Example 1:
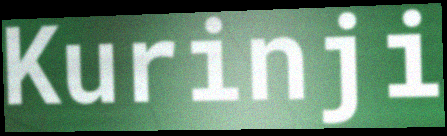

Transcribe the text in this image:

Kurinji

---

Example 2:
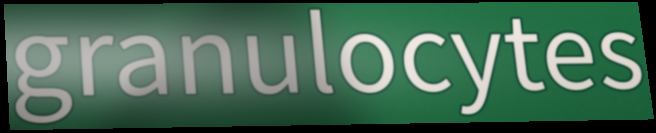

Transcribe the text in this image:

granulocytes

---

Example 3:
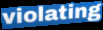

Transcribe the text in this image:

violating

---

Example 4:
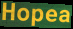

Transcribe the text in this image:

Hopea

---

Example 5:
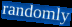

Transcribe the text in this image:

randomly